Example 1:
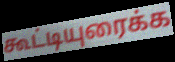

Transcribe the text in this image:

கூட்டியுரைக்க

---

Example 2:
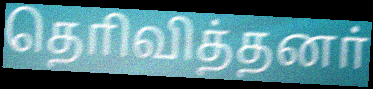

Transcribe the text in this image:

தெரிவித்தனர்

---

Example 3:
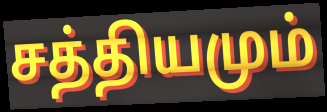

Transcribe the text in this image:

சத்தியமும்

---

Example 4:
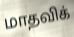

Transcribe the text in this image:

மாதவிக்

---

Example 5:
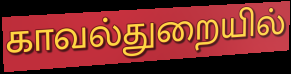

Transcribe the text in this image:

காவல்துறையில்